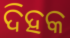
ଦିହକ